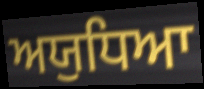
ਅਯੁਧਿਆ